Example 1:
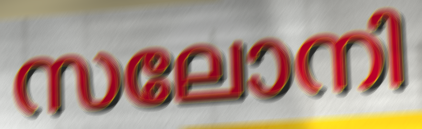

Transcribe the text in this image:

സലോനി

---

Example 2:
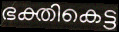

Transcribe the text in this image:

ഭക്തികെട്ട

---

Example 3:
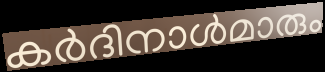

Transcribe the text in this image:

കർദിനാൾമാരും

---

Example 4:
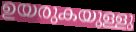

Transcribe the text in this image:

ഉയരുകയുള്ളു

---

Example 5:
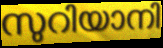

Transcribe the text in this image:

സുറിയാനി